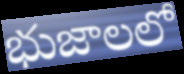
భుజాలలో